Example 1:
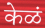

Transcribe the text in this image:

केळं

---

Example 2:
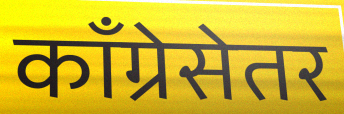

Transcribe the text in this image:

काँग्रेसेतर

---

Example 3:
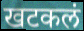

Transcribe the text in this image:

खटकलं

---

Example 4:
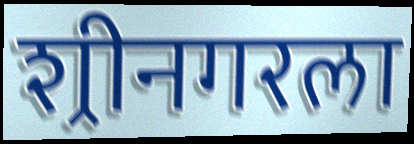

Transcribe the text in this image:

श्रीनगरला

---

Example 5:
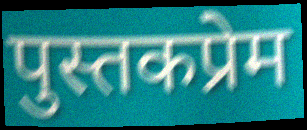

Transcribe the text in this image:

पुस्तकप्रेम